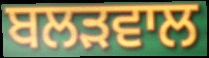
ਬਲੜਵਾਲ